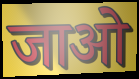
जाओ